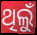
ଥିଲୁଁ